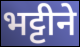
भट्टीने